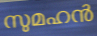
സുമഹൻ